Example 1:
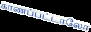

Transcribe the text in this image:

காணப்பட்டாலோ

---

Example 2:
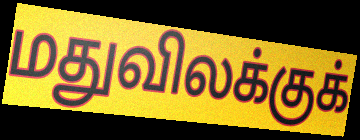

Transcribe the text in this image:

மதுவிலக்குக்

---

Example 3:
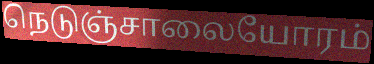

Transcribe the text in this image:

நெடுஞ்சாலையோரம்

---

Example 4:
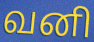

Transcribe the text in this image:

வனி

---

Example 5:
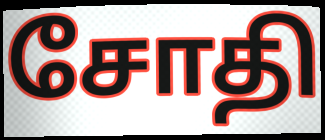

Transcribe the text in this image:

சோதி